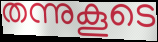
തന്നുകൂടെ